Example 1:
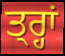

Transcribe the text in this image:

ਤ੍ਰ੍ਹਾਂ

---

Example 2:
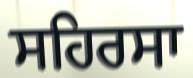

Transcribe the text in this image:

ਸਹਿਰਸਾ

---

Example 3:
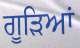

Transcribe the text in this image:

ਗੂੜਿਆਂ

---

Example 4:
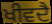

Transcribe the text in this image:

ਖੀਵਦੈ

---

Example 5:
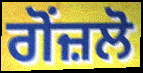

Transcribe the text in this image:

ਗੋਂਜ਼ਲੋ